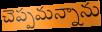
చెప్పమన్నాను